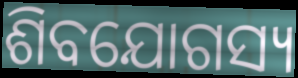
ଶିବଯୋଗସ୍ୟ